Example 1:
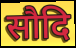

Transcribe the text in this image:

सौदि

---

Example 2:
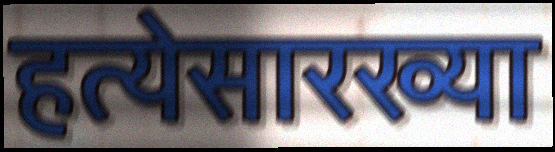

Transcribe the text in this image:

हत्येसारख्या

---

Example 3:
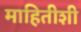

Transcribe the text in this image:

माहितीशी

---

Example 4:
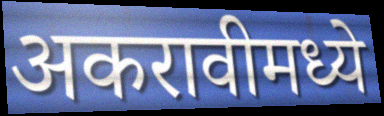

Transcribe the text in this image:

अकरावीमध्ये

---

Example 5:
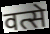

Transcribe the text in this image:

वत्से